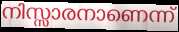
നിസ്സാരനാണെന്ന്